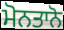
ਮੋਨਤਾਨੋ